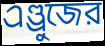
এণ্ড্রুজের